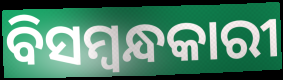
ବିସମ୍ବନ୍ଧକାରୀ